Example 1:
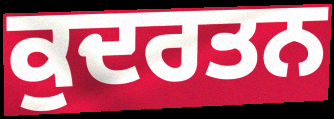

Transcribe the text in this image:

ਕੁਦਰਤਨ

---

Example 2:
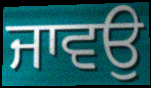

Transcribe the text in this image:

ਜਾਵਉ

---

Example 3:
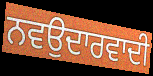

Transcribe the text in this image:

ਨਵਉਦਾਰਵਾਦੀ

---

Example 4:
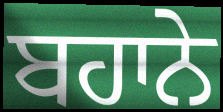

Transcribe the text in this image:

ਬਹਾਨੇ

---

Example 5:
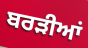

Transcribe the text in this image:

ਬਰੜੀਆਂ